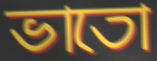
ভাতো